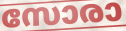
സോരാ